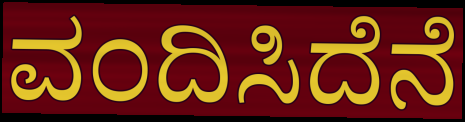
ವಂದಿಸಿದೆನೆ